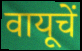
वायूचें